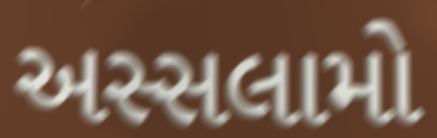
અસ્સલામો